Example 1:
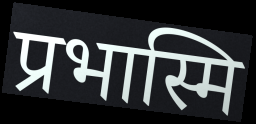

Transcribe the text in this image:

प्रभास्मि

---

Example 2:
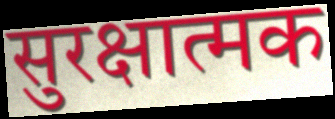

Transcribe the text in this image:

सुरक्षात्मक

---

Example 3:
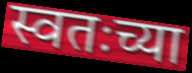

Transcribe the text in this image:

स्वतःच्या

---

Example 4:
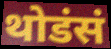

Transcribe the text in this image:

थोडंसं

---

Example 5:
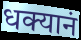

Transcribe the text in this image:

धक्यानं